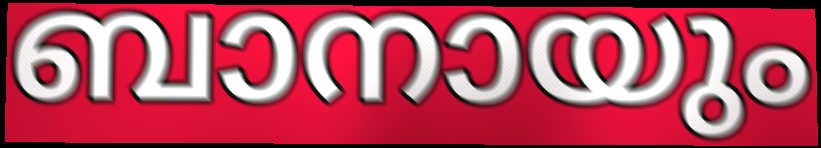
ബാനായും